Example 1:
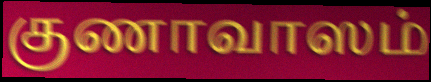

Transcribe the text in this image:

குணாவாஸம்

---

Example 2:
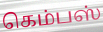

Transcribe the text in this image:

கெம்பஸ்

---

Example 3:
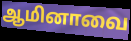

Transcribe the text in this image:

ஆமினாவை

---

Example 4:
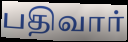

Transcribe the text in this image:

பதிவார்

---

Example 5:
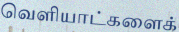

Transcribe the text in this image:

வெளியாட்களைக்